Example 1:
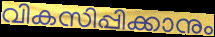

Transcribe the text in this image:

വികസിപ്പിക്കാനും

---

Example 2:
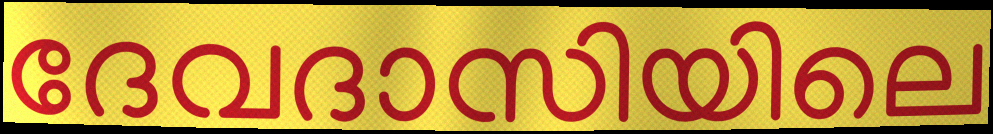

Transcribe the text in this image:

ദേവദാസിയിലെ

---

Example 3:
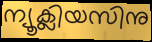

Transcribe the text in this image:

ന്യൂക്ലിയസിനു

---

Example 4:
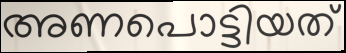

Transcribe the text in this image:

അണപൊട്ടിയത്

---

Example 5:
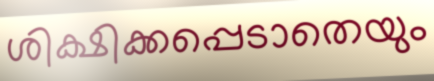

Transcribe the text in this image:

ശിക്ഷിക്കപ്പെടാതെയും